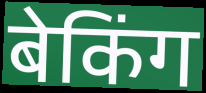
बेकिंग